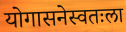
योगासनेस्वतःला